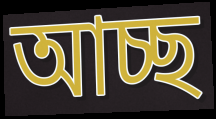
আচ্ছ